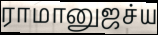
ராமானுஜச்ய